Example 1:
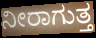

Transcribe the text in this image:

ನೀರಾಗುತ್ತ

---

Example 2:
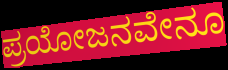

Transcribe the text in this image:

ಪ್ರಯೋಜನವೇನೂ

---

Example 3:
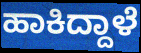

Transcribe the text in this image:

ಹಾಕಿದ್ದಾಳೆ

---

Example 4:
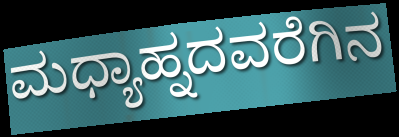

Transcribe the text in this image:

ಮಧ್ಯಾಹ್ನದವರೆಗಿನ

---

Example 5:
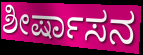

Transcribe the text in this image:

ಶೀರ್ಷಾಸನ